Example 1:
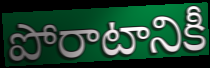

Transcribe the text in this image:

పోరాటానికీ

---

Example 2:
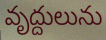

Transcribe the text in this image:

వృద్దులును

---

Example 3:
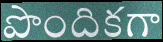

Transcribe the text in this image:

పొందికగా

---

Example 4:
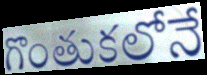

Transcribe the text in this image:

గొంతుకలోనే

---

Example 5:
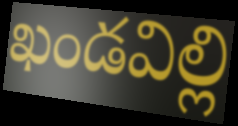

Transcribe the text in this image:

ఖండవిల్లి